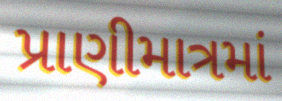
પ્રાણીમાત્રમાં